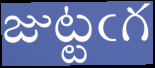
జుట్టఁగ